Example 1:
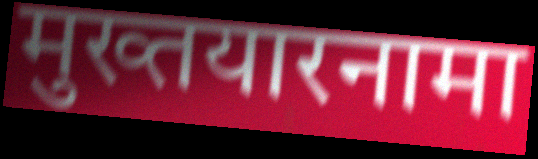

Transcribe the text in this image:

मुख्तयारनामा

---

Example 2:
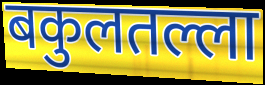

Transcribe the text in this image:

बकुलतल्ला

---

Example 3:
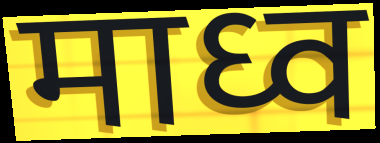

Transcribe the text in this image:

माध्व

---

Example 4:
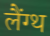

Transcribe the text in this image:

लैंग्थ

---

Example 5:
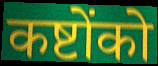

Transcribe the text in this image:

कष्टोंको